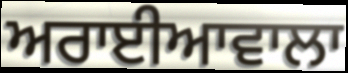
ਅਰਾਈਆਵਾਲਾ